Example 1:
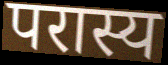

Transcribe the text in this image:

परास्य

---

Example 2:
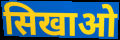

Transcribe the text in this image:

सिखाओ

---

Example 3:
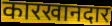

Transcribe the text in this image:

कारखानदार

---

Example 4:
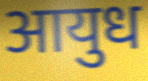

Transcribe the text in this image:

आयुध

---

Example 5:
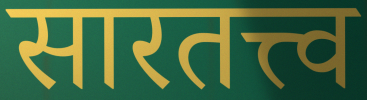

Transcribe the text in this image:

सारतत्त्व